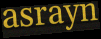
asrayn